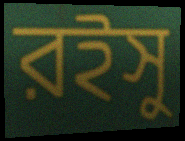
রইসু